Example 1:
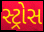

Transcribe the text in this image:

સ્ટ્રોસ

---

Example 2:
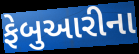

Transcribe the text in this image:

ફેબુઆરીના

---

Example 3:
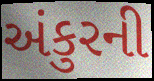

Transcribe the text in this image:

અંકુરની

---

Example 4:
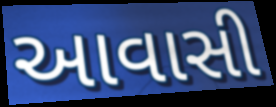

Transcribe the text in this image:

આવાસી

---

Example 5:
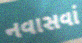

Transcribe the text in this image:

નવાસવાં